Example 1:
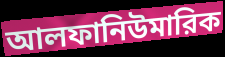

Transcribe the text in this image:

আলফানিউমারিক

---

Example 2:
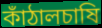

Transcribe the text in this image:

কাঁঠালচাষি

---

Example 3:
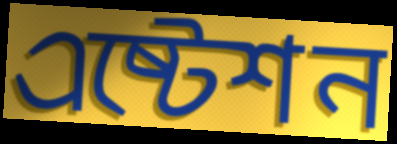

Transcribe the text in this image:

এষ্টেশন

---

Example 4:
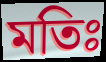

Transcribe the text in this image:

মতিঃ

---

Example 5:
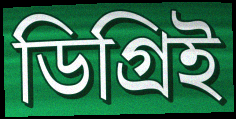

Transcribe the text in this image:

ডিগ্রিই